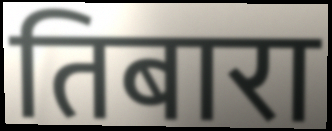
तिबारा